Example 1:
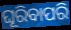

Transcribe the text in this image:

ଘୂରିବାପରି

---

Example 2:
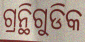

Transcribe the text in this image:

ଗ୍ରନ୍ଥିଗୁଡିକ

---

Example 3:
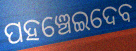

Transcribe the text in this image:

ପହଞ୍ଚେଇଦେବ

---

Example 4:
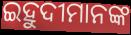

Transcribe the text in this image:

ଇହୁଦୀମାନଙ୍କ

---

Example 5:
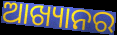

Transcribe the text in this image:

ଆଖ୍ୟାନର